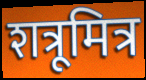
शत्रूमित्र